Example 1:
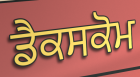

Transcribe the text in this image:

ਡੈਕਸਕੋਮ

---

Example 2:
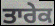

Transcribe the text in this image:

ਤਾਰੇਕ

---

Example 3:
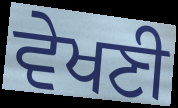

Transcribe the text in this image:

ਵੇਖਣੀ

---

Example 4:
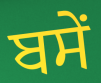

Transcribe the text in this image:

ਬਸੇਂ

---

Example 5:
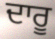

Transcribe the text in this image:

ਦਾਰੂ